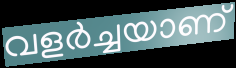
വളർച്ചയാണ്